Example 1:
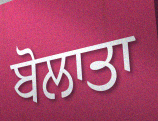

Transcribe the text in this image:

ਬੋਲਾਤਾ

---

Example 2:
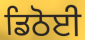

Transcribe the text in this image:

ਡਿਠੋਈ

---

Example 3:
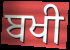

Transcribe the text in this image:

ਬਖੀ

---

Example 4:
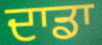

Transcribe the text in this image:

ਦਾਡਾ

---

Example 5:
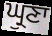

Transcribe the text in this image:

ਘ੍ਰੁਣਾ